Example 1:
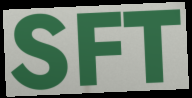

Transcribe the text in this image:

SFT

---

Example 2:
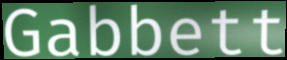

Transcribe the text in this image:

Gabbett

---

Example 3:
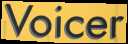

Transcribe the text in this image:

Voicer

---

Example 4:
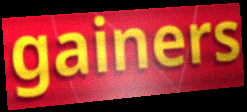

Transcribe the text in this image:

gainers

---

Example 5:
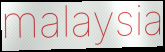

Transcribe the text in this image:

malaysia